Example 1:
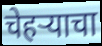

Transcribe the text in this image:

चेहर्‍याचा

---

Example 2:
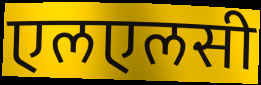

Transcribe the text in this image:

एलएलसी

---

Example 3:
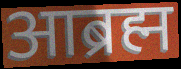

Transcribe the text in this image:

आब्रह्म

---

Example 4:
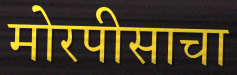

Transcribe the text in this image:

मोरपीसाचा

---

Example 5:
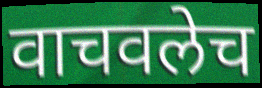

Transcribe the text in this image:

वाचवलेच